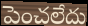
పెంచలేదు